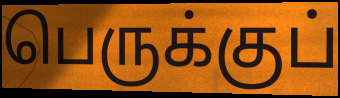
பெருக்குப்